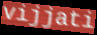
vijjati